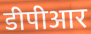
डीपीआर